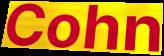
Cohn